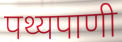
पथ्यपाणी